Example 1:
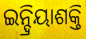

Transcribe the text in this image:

ଇନ୍ଦ୍ରିୟାଶକ୍ତି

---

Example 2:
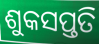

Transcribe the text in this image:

ଶୁକସପ୍ତତି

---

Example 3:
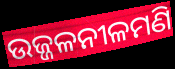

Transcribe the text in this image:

ଉଜ୍ଜଳନୀଳମଣି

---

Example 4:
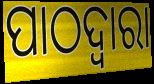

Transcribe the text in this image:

ପାଠଦ୍ଵାରା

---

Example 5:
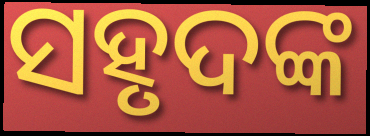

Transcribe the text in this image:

ସହୃଦଙ୍କ